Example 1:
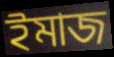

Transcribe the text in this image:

ইমাজ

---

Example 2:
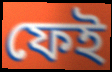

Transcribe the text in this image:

ফেই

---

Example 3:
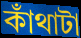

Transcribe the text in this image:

কাঁথাটা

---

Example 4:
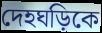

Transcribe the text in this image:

দেহঘড়িকে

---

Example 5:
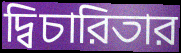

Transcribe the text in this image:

দ্বিচারিতার